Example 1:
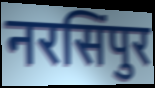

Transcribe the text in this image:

नरसिंपुर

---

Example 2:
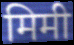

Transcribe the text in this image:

मिमी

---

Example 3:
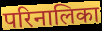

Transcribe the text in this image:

परिनालिका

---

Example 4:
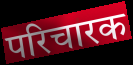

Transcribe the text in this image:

परिचारक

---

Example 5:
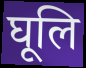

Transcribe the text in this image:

घूलि